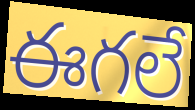
ఈగలే